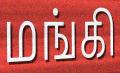
மங்கி